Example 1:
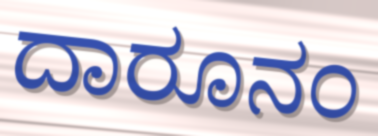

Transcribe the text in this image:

ದಾರೂನಂ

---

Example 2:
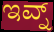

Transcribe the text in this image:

ಇವ್ನ್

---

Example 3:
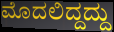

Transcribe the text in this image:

ಮೊದಲಿದ್ದದ್ದು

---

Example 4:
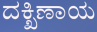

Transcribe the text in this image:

ದಕ್ಖಿಣಾಯ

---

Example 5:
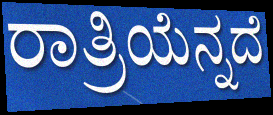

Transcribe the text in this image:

ರಾತ್ರಿಯೆನ್ನದೆ